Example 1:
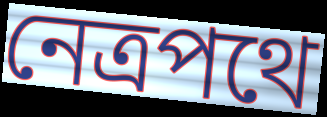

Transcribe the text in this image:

নেত্রপথে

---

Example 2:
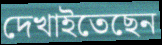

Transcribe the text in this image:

দেখাইতেছেন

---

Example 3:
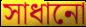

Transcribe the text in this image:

সাধানো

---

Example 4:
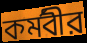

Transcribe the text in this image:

কর্মবীর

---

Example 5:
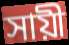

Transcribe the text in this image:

সায়ী